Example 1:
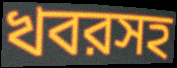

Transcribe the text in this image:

খবরসহ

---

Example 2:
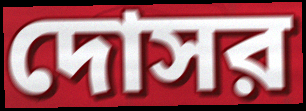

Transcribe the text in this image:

দোসর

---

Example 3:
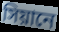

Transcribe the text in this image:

সিয়ানে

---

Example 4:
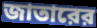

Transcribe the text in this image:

জাতারের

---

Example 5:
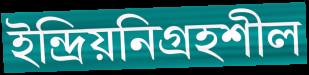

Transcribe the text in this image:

ইন্দ্রিয়নিগ্রহশীল